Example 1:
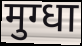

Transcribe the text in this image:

मुग्धा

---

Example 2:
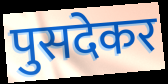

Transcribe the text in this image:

पुसदेकर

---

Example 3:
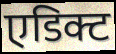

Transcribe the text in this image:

एडिक्ट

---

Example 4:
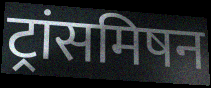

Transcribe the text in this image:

ट्रांसमिषन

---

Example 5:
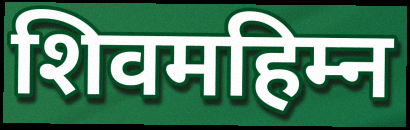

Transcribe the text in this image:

शिवमहिम्न